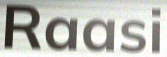
Raasi